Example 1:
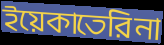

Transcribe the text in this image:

ইয়েকাতেরিনা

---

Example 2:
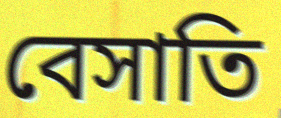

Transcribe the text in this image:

বেসাতি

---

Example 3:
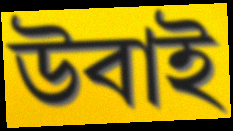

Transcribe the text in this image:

উবাই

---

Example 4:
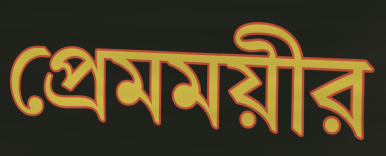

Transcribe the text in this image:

প্রেমময়ীর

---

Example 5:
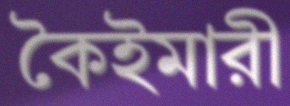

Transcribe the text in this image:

কৈইমারী